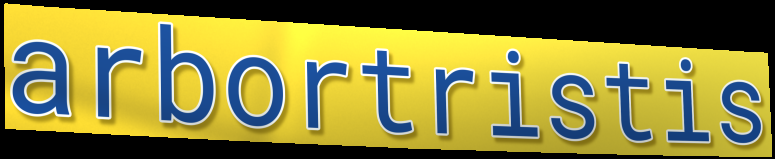
arbortristis